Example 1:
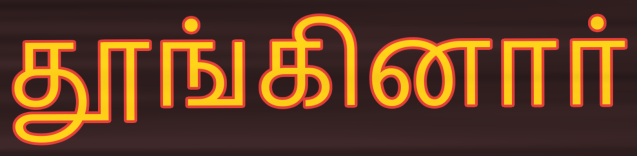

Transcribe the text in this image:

தூங்கினார்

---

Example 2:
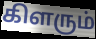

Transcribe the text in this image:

கிளரும்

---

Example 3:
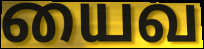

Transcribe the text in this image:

யைவ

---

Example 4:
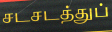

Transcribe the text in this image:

சடசடத்துப்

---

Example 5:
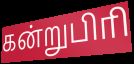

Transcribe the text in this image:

கன்றுபிரி